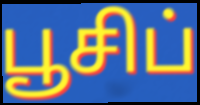
பூசிப்